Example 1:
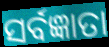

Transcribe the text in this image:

ସର୍ବଜ୍ଞାତା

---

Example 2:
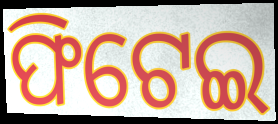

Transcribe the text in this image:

ଫିଟେଇ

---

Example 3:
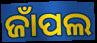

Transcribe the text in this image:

ଜାଁପଲ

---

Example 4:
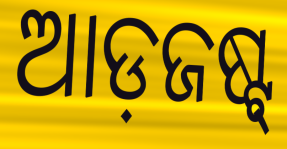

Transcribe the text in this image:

ଆଡ଼ଜଷ୍ଟ୍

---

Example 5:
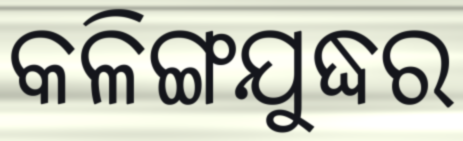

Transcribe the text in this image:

କଳିଙ୍ଗଯୁଦ୍ଧର